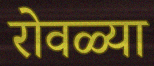
रोवळ्या